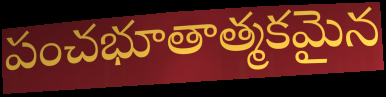
పంచభూతాత్మకమైన